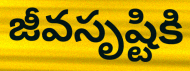
జీవసృష్టికి